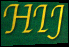
HIJ